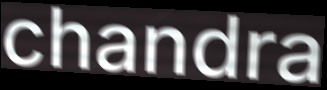
chandra